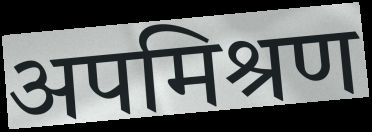
अपमिश्रण